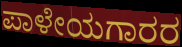
ಪಾಳೇಯಗಾರರ